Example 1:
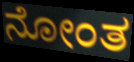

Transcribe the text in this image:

ನೋಂತ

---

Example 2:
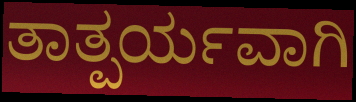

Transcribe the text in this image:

ತಾತ್ಪರ್ಯವಾಗಿ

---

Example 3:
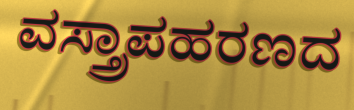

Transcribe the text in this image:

ವಸ್ತ್ರಾಪಹರಣದ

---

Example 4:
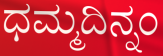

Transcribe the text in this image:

ಧಮ್ಮದಿನ್ನಂ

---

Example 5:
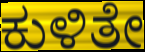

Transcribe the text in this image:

ಕುಳಿತೇ